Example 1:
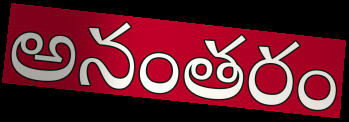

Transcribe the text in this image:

అనంతరం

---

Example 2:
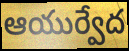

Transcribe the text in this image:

ఆయుర్వేద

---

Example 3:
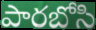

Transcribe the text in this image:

పారబోసి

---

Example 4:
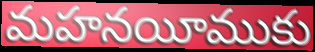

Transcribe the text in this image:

మహనయీముకు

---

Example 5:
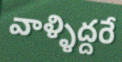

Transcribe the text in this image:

వాళ్ళిద్దరే